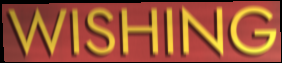
WISHING